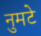
नुमटे